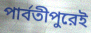
পার্বতীপুরেই